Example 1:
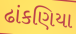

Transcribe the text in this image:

ઢાંકણિયા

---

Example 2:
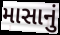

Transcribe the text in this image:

માસાનું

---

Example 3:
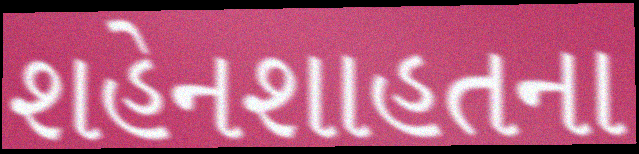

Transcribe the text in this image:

શહેનશાહતના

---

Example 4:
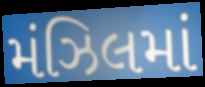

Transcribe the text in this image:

મંઝિલમાં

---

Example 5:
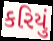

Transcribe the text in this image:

કરિયું